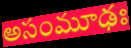
అసంమూఢః